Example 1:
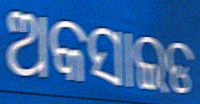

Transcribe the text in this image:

ଅକସାଇଡ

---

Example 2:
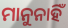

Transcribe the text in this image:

ମାନୁନାହିଁ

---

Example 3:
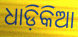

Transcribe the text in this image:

ଧାଡ଼ିକିଆ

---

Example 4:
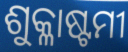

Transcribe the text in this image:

ଶୁକ୍ଳାଷ୍ଟମୀ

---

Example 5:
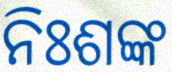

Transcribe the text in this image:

ନିଃଶଙ୍କ